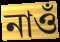
নাওঁ